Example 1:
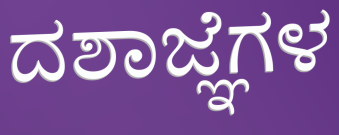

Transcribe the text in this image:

ದಶಾಜ್ಞೆಗಳ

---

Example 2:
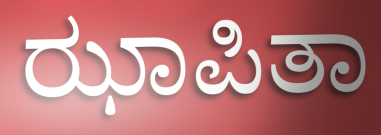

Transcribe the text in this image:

ಝಾಪಿತಾ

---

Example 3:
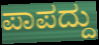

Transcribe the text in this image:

ಪಾಪದ್ದು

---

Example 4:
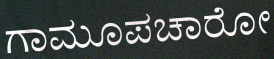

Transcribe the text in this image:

ಗಾಮೂಪಚಾರೋ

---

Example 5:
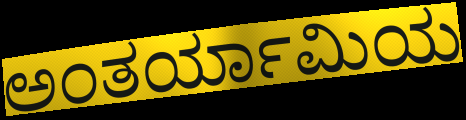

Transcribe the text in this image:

ಅಂತರ್ಯಾಮಿಯ